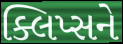
ક્લિપ્સને